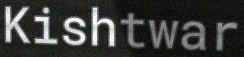
Kishtwar